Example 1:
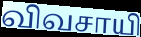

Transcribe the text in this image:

விவசாயி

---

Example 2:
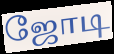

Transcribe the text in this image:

ஜோடி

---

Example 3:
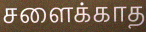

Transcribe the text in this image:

சளைக்காத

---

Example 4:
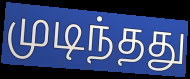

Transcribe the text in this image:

முடிந்தது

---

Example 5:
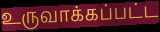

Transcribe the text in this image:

உருவாக்கப்பட்ட